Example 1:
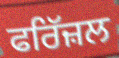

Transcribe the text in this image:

ਫਰਿੱਜ਼ਲ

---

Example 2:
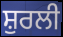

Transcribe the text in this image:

ਸ਼ੁਰਲੀ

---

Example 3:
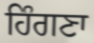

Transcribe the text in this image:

ਹਿੰਗਣਾ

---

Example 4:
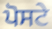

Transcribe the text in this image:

ਪੋਸਟੇ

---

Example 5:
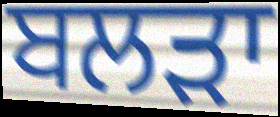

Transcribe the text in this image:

ਬਲੜਾ